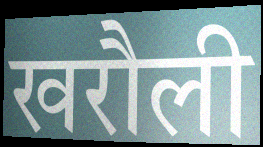
खरौली